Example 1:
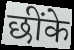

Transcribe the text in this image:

छींके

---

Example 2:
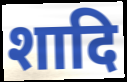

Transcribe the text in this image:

शादि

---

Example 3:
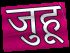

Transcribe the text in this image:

जुहू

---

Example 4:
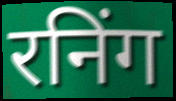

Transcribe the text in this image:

रनिंग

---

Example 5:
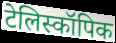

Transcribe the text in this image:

टेलिस्कॉपिक